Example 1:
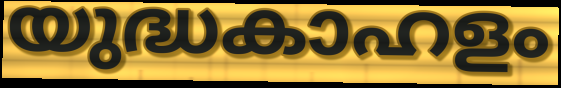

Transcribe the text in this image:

യുദ്ധകാഹളം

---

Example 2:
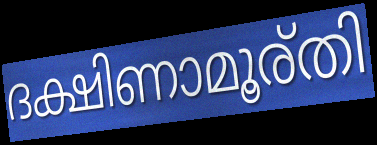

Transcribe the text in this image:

ദക്ഷിണാമൂര്തി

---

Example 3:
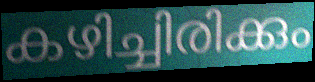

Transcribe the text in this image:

കഴിച്ചിരിക്കും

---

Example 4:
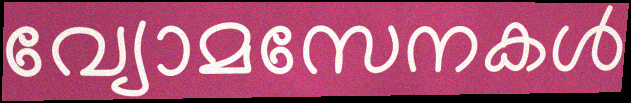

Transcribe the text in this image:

വ്യോമസേനകൾ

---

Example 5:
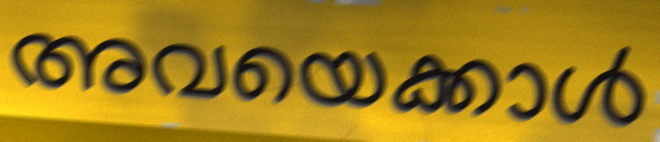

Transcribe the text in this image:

അവയെക്കാൾ